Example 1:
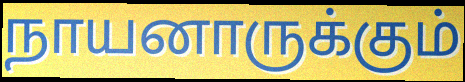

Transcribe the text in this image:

நாயனாருக்கும்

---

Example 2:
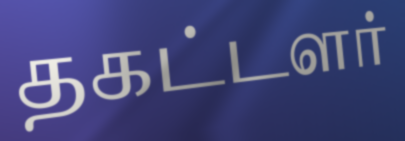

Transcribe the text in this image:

தகட்டளர்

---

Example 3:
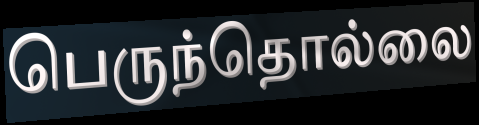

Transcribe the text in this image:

பெருந்தொல்லை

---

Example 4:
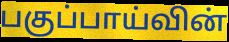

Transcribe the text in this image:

பகுப்பாய்வின்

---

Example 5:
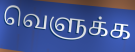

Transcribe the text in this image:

வெளுக்க